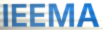
IEEMA